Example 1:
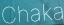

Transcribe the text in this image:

Chaka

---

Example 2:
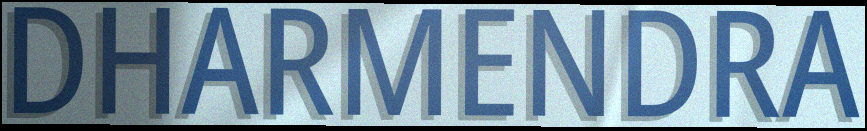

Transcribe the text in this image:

DHARMENDRA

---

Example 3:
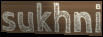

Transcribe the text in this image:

sukhni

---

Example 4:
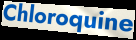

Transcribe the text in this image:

Chloroquine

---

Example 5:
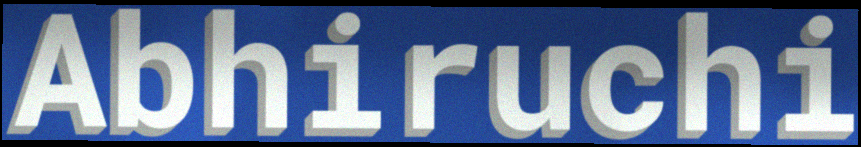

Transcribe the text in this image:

Abhiruchi